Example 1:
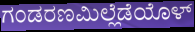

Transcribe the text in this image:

ಗಂಡರಣಮಿಲ್ಲೆಡೆಯೊಳ್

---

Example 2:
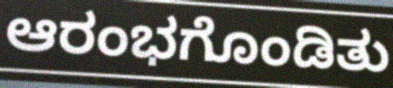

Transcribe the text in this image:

ಆರಂಭಗೊಂಡಿತು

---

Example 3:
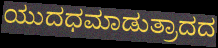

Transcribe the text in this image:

ಯುದಧಮಾಡುತ್ರಾದದ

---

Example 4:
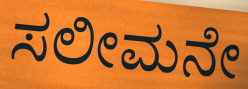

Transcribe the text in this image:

ಸಲೀಮನೇ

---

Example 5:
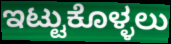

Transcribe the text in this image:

ಇಟ್ಟುಕೊಳ್ಳಲು